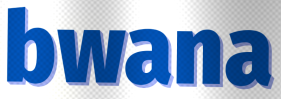
bwana